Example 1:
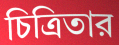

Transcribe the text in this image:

চিত্রিতার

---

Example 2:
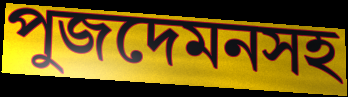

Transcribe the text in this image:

পুজদেমনসহ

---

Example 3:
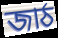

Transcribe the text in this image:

জাঠ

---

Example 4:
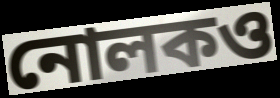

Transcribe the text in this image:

নোলকও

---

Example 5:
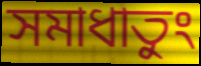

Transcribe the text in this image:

সমাধাতুং